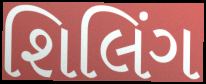
શિલિંગ